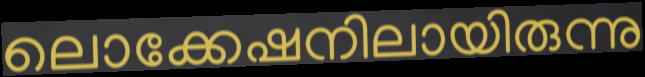
ലൊക്കേഷനിലായിരുന്നു